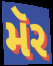
મૅર